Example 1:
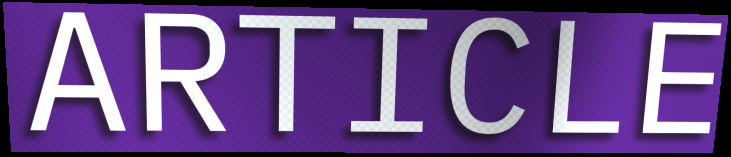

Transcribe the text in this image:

ARTICLE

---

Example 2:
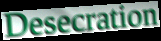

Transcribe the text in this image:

Desecration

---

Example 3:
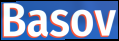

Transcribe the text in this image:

Basov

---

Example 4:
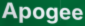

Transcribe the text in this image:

Apogee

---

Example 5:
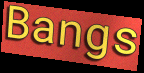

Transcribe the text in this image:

Bangs